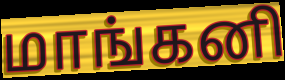
மாங்கனி